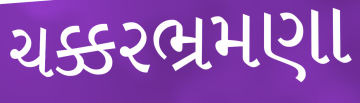
ચક્કરભ્રમણા